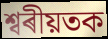
শ্বৰীয়তক